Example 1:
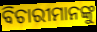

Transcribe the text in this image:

ବିଚାରୀମାନଙ୍କୁ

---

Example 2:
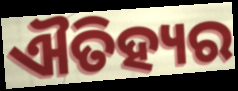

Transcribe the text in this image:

ଐତିହ୍ୟର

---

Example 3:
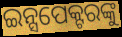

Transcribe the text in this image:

ଇନ୍ସପେକ୍ଟରଙ୍କୁ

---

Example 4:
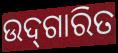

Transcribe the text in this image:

ଉଦ୍‌ଗାରିତ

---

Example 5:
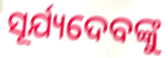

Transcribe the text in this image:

ସୂର୍ଯ୍ୟଦେବଙ୍କୁ